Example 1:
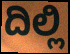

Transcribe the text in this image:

ದಿಲ್ಲಿ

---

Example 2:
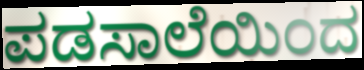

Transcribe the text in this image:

ಪಡಸಾಲೆಯಿಂದ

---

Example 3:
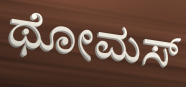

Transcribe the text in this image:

ಥೋಮಸ್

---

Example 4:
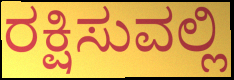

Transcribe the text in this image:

ರಕ್ಷಿಸುವಲ್ಲಿ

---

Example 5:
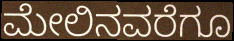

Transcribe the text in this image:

ಮೇಲಿನವರೆಗೂ